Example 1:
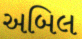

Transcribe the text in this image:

અબિલ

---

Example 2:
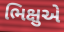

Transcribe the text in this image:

ભિક્ષુએ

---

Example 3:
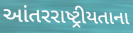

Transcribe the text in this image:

આંતરરાષ્ટ્રીયતાના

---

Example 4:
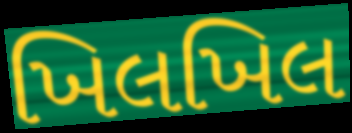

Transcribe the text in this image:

ખિલખિલ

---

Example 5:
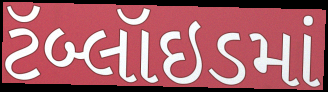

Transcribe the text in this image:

ટૅબ્લૉઇડમાં